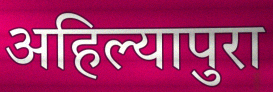
अहिल्यापुरा